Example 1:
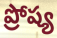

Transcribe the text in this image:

ప్రోష్య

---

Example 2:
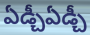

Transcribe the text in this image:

ఏడ్చీఏడ్చీ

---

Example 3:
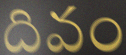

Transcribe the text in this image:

దివం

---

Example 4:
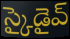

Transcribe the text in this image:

స్కైడైవ్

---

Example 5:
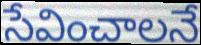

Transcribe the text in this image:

సేవించాలనే